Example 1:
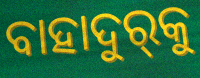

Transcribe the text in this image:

ବାହାଦୁର୍‌କୁ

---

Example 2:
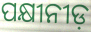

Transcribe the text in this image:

ପକ୍ଷୀନୀଡ଼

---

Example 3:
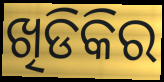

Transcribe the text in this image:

ଖିଡିକିର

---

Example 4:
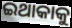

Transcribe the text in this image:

ଇଥାକାକୁ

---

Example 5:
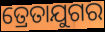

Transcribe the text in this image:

ତ୍ରେତାଯୁଗର